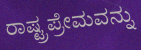
ರಾಷ್ಟ್ರಪ್ರೇಮವನ್ನು